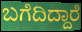
ಬಗೆದಿದ್ದಾರೆ